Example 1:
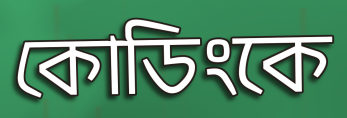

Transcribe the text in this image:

কোডিংকে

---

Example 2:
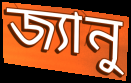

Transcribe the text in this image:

জ্যানু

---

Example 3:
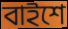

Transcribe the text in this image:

বাইশে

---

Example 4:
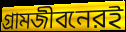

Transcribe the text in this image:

গ্রামজীবনেরই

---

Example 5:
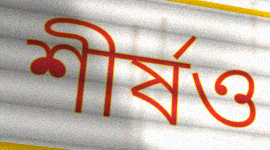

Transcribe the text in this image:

শীর্ষও